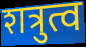
शत्रुत्व